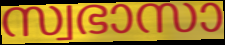
സ്വഭാസാ